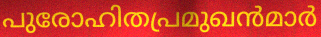
പുരോഹിതപ്രമുഖൻമാർ